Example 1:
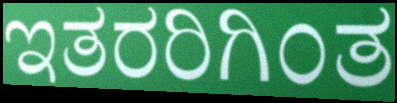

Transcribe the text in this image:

ಇತರರಿಗಿಂತ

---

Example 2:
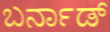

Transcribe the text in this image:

ಬರ್ನಾಡ್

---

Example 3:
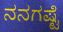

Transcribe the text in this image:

ನನಗಷ್ಟೆ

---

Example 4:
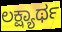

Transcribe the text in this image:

ಲಕ್ಷ್ಯಾರ್ಥ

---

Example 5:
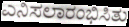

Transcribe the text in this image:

ಎನಿಸಲಾರಂಭಿಸಿತು